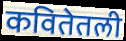
कवितेतली